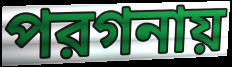
পরগনায়